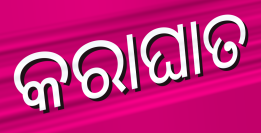
କରାଘାତ